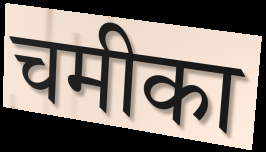
चमीका